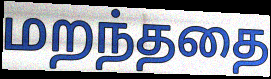
மறந்ததை